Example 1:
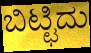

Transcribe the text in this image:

ಬಿಟ್ಟಿದು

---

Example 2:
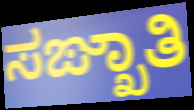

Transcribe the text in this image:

ಸಙ್ಖಾತಿ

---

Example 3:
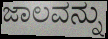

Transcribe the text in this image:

ಜಾಲವನ್ನು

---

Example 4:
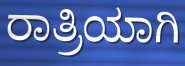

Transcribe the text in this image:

ರಾತ್ರಿಯಾಗಿ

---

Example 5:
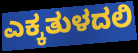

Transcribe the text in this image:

ಎಕ್ಕತುಳದಲಿ